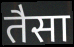
तैसा